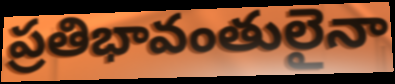
ప్రతిభావంతులైనా